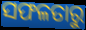
ସଫଳତାରୁ